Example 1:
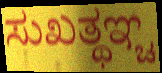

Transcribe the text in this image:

ಸುಖತ್ಥಞ್ಚ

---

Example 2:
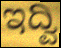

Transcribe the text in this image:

ಇದ್ವಿ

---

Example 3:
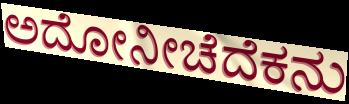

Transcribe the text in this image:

ಅದೋನೀಚೆದೆಕನು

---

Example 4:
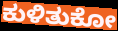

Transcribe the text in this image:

ಕುಳಿತುಕೋ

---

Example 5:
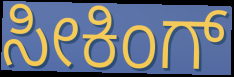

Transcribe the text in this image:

ಸೀಕಿಂಗ್